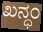
ಖನ್ಧಂ